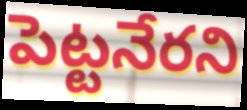
పెట్టనేరని